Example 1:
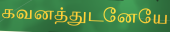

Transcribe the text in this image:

கவனத்துடனேயே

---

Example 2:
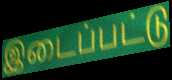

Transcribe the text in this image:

இடைப்பட்டு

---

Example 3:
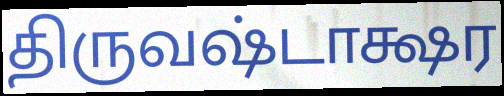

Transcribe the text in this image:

திருவஷ்டாக்ஷர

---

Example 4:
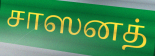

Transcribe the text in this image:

சாஸனத்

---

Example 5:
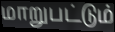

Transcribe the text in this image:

மாறுபட்டும்